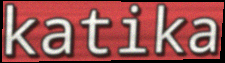
katika